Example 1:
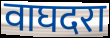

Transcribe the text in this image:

वाघदरा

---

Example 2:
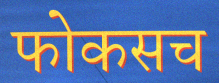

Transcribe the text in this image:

फोकसच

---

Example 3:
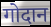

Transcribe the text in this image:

गोदान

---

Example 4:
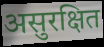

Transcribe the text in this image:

असुरक्षित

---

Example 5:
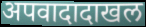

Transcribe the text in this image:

अपवादादाखल